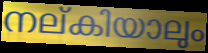
നല്‌കിയാലും